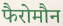
फैरोमौन